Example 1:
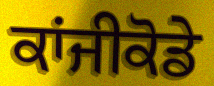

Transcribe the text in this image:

ਕਾਂਜੀਕੋਡੇ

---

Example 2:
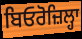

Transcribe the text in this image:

ਬਿਓਰੋਜ਼ਿਲ੍ਹਾ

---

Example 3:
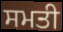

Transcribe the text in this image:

ਸਮਤੀ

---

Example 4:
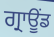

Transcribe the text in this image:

ਗ੍ਰਾਊਂਡ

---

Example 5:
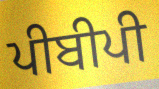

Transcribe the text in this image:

ਪੀਬੀਪੀ